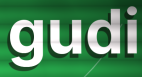
gudi